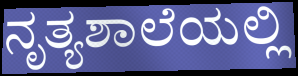
ನೃತ್ಯಶಾಲೆಯಲ್ಲಿ